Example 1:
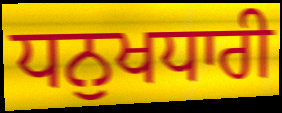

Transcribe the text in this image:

ਧਨੁਖਧਾਰੀ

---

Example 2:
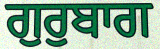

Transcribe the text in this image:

ਗੁਰੁਬਾਗ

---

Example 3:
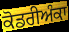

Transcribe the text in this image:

ਕੋਡਰੀਅੰਕਾ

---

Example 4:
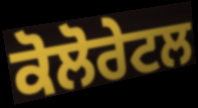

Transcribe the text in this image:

ਕੋਲੋਰੇਟਲ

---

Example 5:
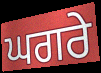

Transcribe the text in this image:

ਘਗਰੇ